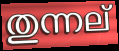
തുന്നല്